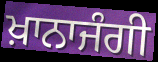
ਖ਼ਾਨਾਜੰਗੀ